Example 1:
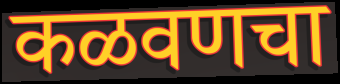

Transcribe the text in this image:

कळवणचा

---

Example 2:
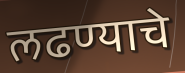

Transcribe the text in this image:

लढण्याचे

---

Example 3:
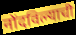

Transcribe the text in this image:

नोंदविल्याची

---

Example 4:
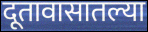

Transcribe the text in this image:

दूतावासातल्या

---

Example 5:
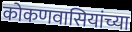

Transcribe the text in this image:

कोकणवासियांच्या